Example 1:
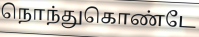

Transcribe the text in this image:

நொந்துகொண்டே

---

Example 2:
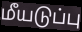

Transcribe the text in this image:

மீயடுப்பு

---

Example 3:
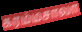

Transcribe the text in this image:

கரம்மசாலா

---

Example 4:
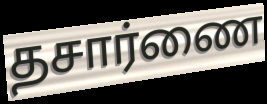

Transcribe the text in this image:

தசார்ணை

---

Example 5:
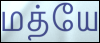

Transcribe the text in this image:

மத்யே